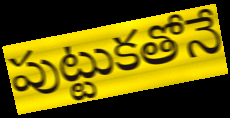
పుట్టుకతోనే